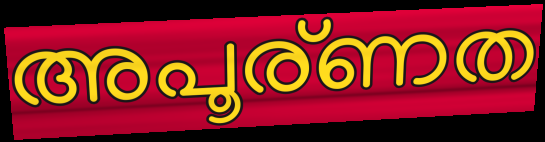
അപൂര്ണത